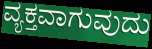
ವ್ಯಕ್ತವಾಗುವುದು